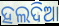
ହଲଦିଆ